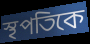
স্থপতিকে